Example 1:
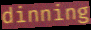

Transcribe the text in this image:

dinning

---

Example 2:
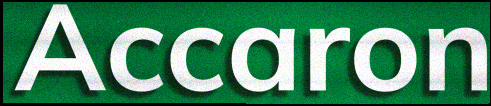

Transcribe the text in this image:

Accaron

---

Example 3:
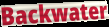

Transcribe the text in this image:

Backwater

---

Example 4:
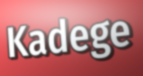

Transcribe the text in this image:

Kadege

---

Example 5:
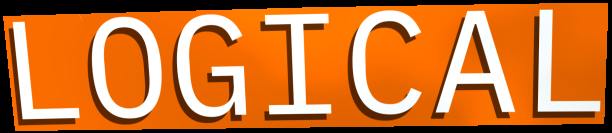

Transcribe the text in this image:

LOGICAL